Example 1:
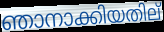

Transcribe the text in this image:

ഞാനാക്കിയതില്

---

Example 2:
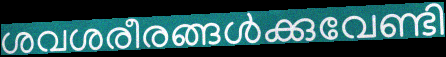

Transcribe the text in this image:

ശവശരീരങ്ങൾക്കുവേണ്ടി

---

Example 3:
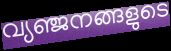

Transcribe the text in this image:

വ്യഞ്ജനങ്ങളുടെ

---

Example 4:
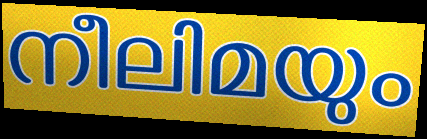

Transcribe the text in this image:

നീലിമയും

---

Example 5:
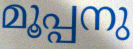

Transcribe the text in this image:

മൂപ്പനു